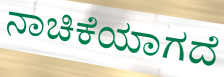
ನಾಚಿಕೆಯಾಗದೆ